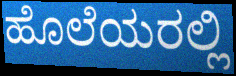
ಹೊಲೆಯರಲ್ಲಿ